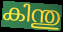
കിന്തു